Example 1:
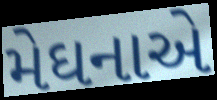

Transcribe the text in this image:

મેઘનાએ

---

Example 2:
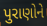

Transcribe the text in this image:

પુરાણોને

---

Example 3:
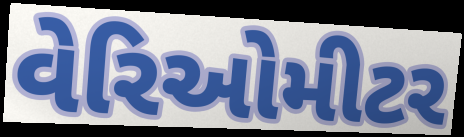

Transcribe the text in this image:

વેરિઓમીટર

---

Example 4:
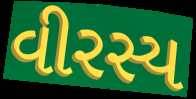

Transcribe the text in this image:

વીરસ્ય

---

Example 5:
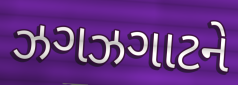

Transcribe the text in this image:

ઝગઝગાટને